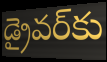
డ్రైవర్‌కు